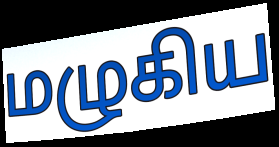
மழுகிய